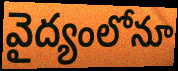
వైద్యంలోనూ